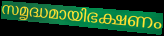
സമൃദ്ധമായിഭക്ഷണം